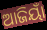
ଆଜିୟାଁ